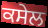
ਕਸੇਲ